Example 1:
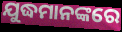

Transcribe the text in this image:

ଯୁଦ୍ଧମାନଙ୍କରେ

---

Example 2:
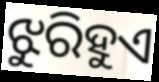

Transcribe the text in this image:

ଝୁରିହୁଏ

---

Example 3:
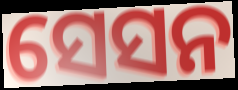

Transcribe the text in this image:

ସେସନ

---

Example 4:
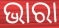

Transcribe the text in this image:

ଭାରା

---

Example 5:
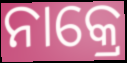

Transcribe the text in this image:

ନାକ୍ରେ